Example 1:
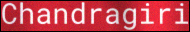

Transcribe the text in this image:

Chandragiri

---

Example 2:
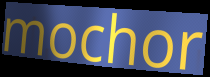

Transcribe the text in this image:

mochor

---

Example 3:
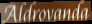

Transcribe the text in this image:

Aldrovanda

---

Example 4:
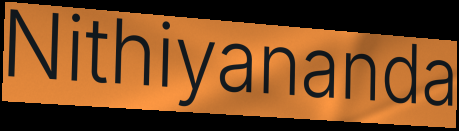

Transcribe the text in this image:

Nithiyananda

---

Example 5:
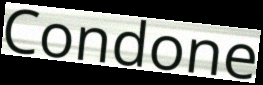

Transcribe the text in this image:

Condone